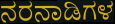
ನರನಾಡಿಗಳ